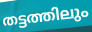
തട്ടത്തിലും